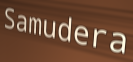
Samudera